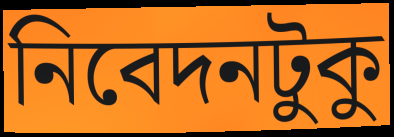
নিবেদনটুকু